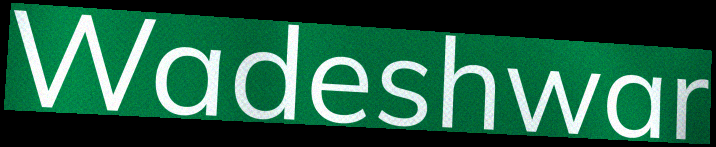
Wadeshwar